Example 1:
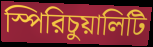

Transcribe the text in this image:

স্পিরিচুয়ালিটি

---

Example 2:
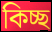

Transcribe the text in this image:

কিচ্ছ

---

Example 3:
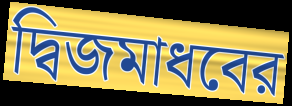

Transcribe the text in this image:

দ্বিজমাধবের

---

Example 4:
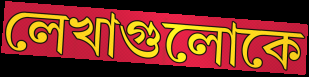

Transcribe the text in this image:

লেখাগুলোকে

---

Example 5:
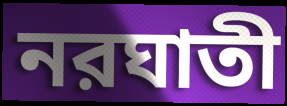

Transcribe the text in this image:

নরঘাতী